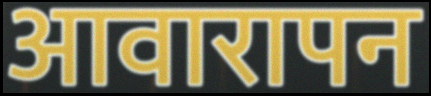
आवारापन